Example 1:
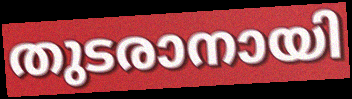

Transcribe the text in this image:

തുടരാനായി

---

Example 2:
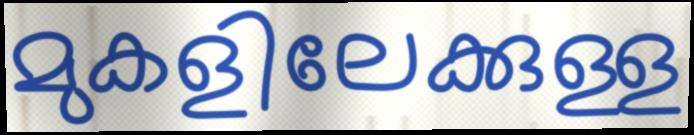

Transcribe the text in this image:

മുകളിലേക്കുള്ള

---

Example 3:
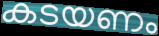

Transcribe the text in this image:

കടയണം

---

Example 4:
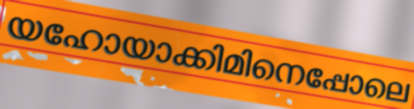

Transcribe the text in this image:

യഹോയാക്കിമിനെപ്പോലെ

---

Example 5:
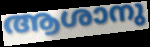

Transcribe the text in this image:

ആശാനു